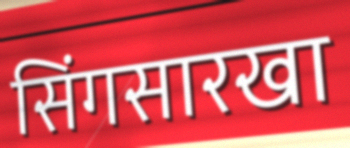
सिंगसारखा